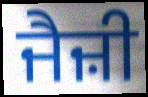
ਜੈਜ਼ੀ